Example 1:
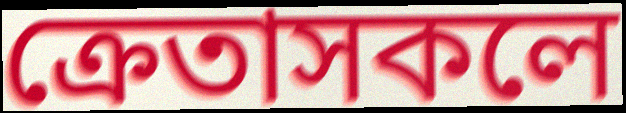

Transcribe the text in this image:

ক্ৰেতাসকলে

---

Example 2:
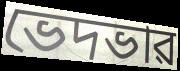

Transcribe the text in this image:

ভেদভাৱ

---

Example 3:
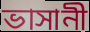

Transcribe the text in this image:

ভাসানী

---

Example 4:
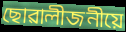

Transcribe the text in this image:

ছোৱালীজনীয়ে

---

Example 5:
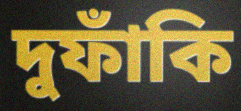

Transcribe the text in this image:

দুফাঁকি